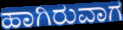
ಹಾಗಿರುವಾಗ